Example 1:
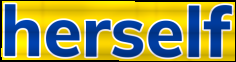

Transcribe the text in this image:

herself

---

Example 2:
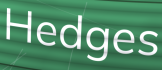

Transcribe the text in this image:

Hedges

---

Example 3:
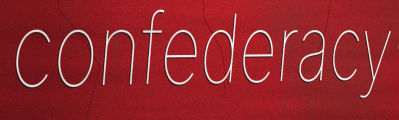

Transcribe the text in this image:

confederacy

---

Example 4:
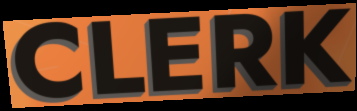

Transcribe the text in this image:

CLERK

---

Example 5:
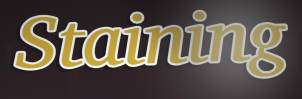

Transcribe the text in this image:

Staining